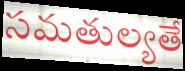
సమతుల్యతే